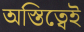
অস্তিত্বেই